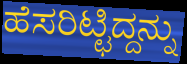
ಹೆಸರಿಟ್ಟಿದ್ದನ್ನು